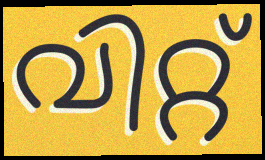
വിറ്റ്